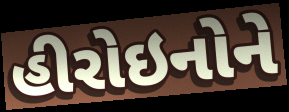
હીરોઇનોને